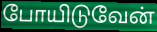
போயிடுவேன்